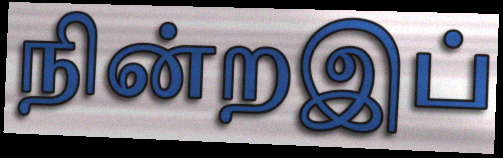
நின்றஇப்